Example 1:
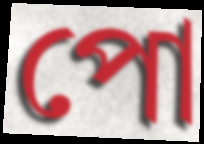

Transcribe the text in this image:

পো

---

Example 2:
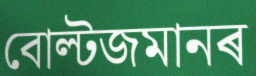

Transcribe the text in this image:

বোল্টজমানৰ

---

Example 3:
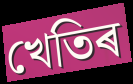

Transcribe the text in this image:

খেতিৰ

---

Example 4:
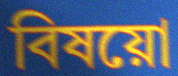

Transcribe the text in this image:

বিষয়ো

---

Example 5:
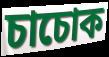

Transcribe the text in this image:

চাচোক